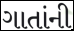
ગાતાંની